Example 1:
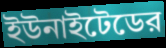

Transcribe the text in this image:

ইউনাইটেডের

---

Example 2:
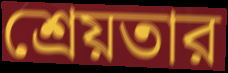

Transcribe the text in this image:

শ্রেয়তার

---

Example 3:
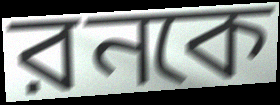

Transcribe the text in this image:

রনকে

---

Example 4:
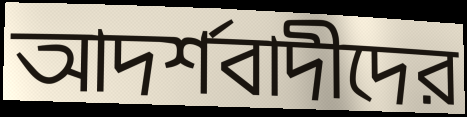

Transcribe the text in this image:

আদর্শবাদীদের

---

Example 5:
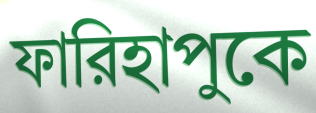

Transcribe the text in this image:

ফারিহাপুকে